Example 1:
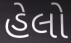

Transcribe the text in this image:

હેલો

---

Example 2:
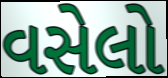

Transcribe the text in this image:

વસેલો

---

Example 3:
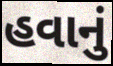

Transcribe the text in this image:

હવાનું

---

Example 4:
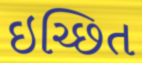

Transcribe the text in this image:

ઇચ્છિત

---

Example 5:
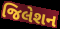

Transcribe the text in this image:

જિલેશન